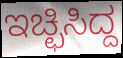
ಇಚ್ಛಿಸಿದ್ದ